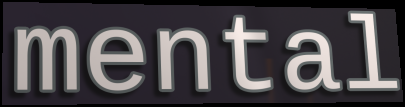
mental